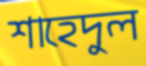
শাহেদুল